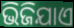
ଭିଜିଯାଏ